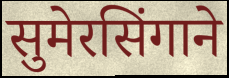
सुमेरसिंगाने